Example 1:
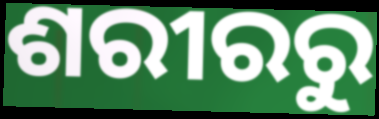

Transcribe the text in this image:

ଶରୀରରୁ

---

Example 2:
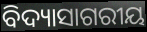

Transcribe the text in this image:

ବିଦ୍ୟାସାଗରୀୟ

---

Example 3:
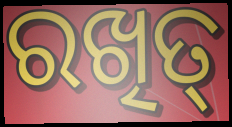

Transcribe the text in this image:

ରଖିତ୍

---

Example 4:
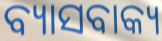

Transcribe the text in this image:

ବ୍ୟାସବାକ୍ୟ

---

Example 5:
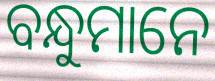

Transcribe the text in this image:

ବନ୍ଧୁମାନେ